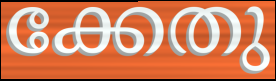
ക്കേതു